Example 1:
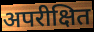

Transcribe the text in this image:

अपरीक्षित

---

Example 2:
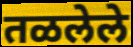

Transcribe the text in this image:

तळलेले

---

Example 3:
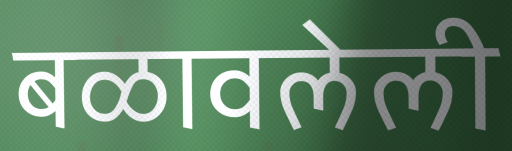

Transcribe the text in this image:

बळावलेली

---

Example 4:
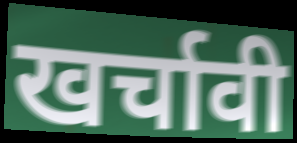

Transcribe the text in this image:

खर्चावी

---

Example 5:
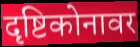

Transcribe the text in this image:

दृष्टिकोनावर